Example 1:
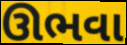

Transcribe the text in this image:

ઊભવા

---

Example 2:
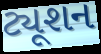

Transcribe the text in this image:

ટ્યૂશન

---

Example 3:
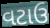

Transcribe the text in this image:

વટાઉ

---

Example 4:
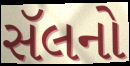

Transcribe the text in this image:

સૅલનો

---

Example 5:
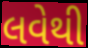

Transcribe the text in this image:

લવેથી